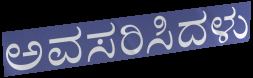
ಅವಸರಿಸಿದಳು